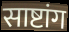
साष्टांग